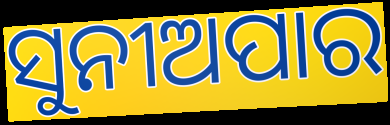
ସୁନୀଅପାର